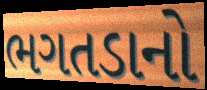
ભગતડાનો